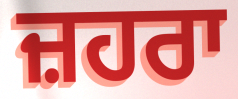
ਜ਼ਹਰਾ